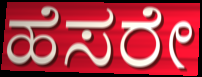
ಹೆಸರೇ